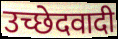
उच्छेदवादी